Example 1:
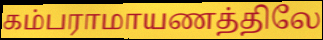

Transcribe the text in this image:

கம்பராமாயணத்திலே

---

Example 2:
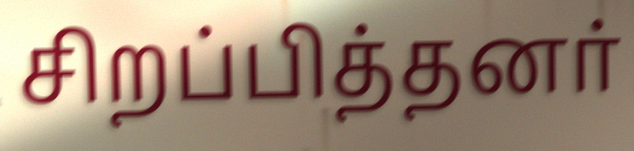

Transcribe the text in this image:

சிறப்பித்தனர்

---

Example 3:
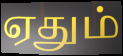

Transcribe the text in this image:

ஏதும்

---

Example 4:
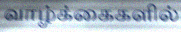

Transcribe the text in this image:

வாழ்க்கைகளில்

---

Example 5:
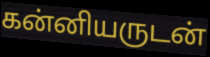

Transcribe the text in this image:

கன்னியருடன்